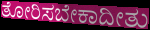
ತೋರಿಸಬೇಕಾದೀತು